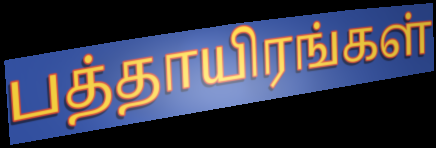
பத்தாயிரங்கள்